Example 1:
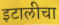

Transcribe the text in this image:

इटालीचा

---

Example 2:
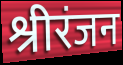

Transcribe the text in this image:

श्रीरंजन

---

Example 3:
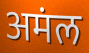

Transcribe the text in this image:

अमंल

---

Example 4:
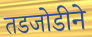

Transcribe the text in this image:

तडजोडीने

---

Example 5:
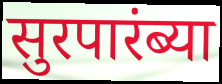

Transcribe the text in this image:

सुरपारंब्या